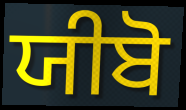
ਯੀਬੋ